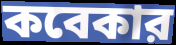
কবেকার